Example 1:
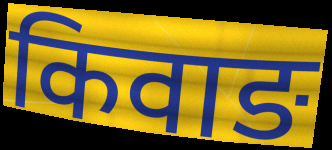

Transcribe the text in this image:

किवाङ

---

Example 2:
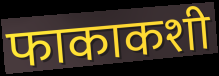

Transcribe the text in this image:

फाकाकशी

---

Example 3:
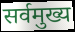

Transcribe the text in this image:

सर्वमुख्य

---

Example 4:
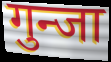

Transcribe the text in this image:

गुन्जा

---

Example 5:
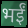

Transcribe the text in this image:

भईं